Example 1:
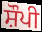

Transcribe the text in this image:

ਸ਼ੌਪੀ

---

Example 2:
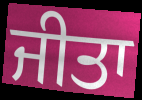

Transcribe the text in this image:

ਜੀਤਾ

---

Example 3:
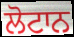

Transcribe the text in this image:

ਲੋਟਾਨ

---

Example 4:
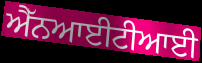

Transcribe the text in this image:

ਐੱਨਆਈਟੀਆਈ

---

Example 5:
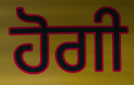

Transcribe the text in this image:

ਹੋਗੀ